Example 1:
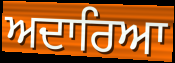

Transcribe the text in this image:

ਅਦਾਰਿਆ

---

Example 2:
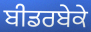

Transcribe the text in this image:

ਬੀਡਰਬੇਕੇ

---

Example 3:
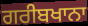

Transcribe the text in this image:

ਗਰੀਬਖਾਨਾ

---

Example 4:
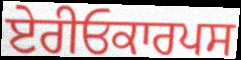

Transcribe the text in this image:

ਏਰੀਓਕਾਰਪਸ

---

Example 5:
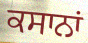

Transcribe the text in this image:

ਕਸਾਨਾਂ